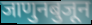
जाणुनबुजून